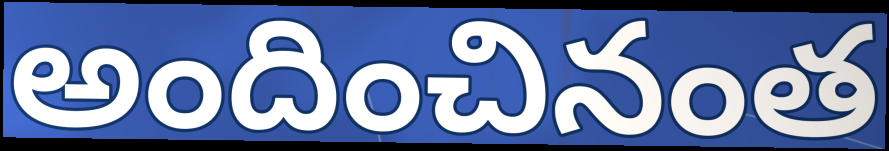
అందించినంత